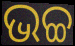
ଭଚ୍ଚ